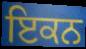
ਇਕਨ